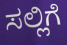
ಸಲ್ಲಿಗೆ